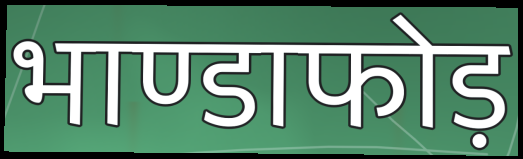
भाण्डाफोड़